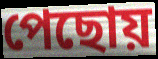
পেছোয়